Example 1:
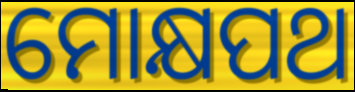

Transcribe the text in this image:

ମୋକ୍ଷପଥ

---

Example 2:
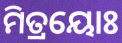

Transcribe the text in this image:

ମିତ୍ରୟୋଃ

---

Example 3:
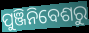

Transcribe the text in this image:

ପୁଞ୍ଜିନିବେଶରୁ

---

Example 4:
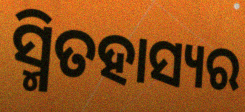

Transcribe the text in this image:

ସ୍ମିତହାସ୍ୟର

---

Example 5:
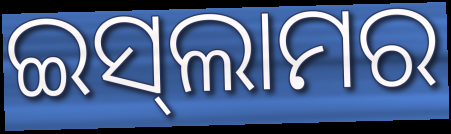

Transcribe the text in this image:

ଇସ୍‍ଲାମର